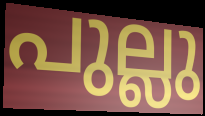
പുല്ലു